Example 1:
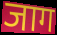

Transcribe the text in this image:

जाग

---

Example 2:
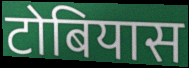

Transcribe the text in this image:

टोबियास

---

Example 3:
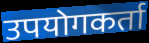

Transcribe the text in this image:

उपयोगकर्ता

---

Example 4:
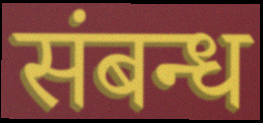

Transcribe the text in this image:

संबन्ध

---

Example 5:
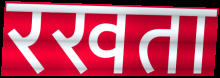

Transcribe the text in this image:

रखता